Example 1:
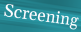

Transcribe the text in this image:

Screening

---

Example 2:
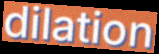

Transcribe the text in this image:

dilation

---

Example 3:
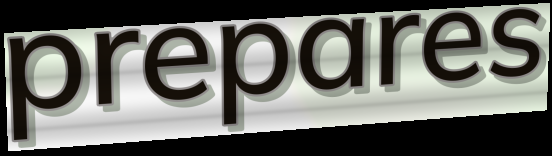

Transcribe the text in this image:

prepares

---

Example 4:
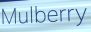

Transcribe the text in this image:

Mulberry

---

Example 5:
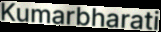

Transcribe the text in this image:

Kumarbharati